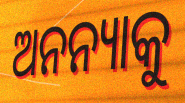
ଅନନ୍ୟାକୁ